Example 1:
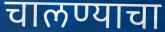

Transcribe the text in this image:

चालण्याचा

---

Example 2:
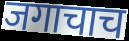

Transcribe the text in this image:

जगाचाच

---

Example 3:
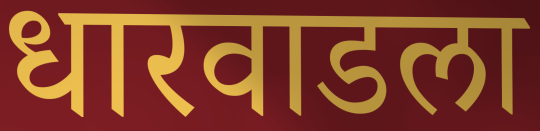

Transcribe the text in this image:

धारवाडला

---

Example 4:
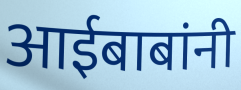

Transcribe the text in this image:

आईबाबांनी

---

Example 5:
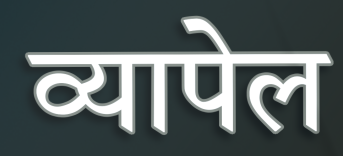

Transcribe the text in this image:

व्यापेल